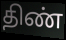
திண்